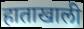
हाताखाली